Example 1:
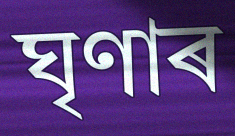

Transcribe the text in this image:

ঘৃণাৰ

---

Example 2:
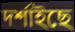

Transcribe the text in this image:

দৰ্শাইছে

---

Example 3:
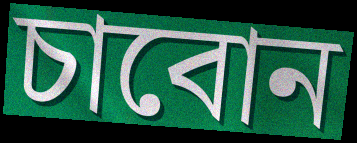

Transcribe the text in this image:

চাবোন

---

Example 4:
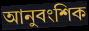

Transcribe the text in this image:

আনুবংশিক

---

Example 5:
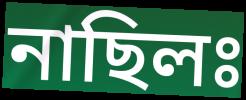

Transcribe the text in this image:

নাছিলঃ